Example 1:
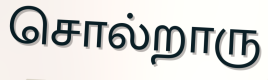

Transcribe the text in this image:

சொல்றாரு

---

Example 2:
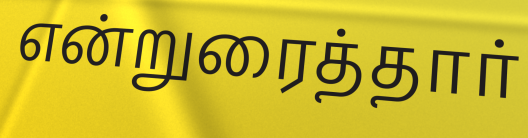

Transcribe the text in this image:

என்றுரைத்தார்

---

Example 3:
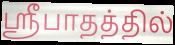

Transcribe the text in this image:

ஸ்ரீபாதத்தில்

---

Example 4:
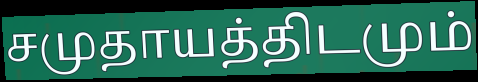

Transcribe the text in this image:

சமுதாயத்திடமும்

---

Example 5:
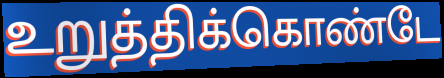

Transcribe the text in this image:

உறுத்திக்கொண்டே